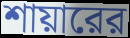
শায়ারের